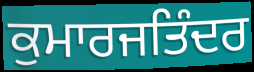
ਕੁਮਾਰਜਤਿੰਦਰ